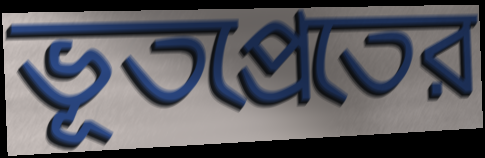
ভূতপ্রেতের